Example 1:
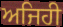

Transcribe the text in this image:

ਅਜਿਹੀ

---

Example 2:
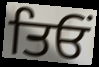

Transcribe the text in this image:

ਤਿਓਂ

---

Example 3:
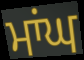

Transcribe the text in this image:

ਮਾਂਘ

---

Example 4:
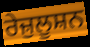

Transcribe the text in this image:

ਰੇਜ਼ੁਲੂਸ਼ਨ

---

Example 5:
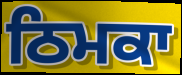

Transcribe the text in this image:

ਠਿਮਕਾ